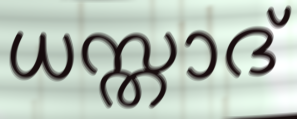
ധസ്താദ്